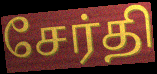
சேர்தி